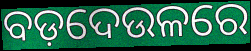
ବଡ଼ଦେଉଳରେ